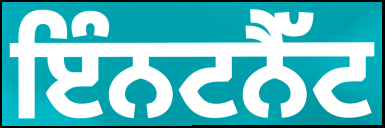
ਇੰਨਟਨੈੱਟ